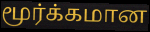
மூர்க்கமான